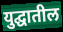
युद्घातील